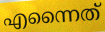
എന്നൈത്